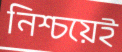
নিশ্চয়েই